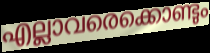
എല്ലാവരെക്കൊണ്ടും